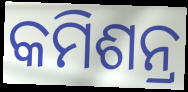
କମିଶନ୍ର